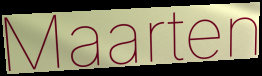
Maarten